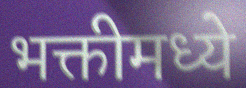
भक्तीमध्ये